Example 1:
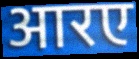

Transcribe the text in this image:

आरए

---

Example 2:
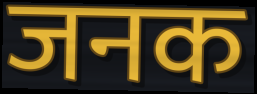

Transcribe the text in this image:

जनक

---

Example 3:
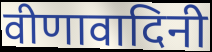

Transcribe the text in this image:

वीणावादिनी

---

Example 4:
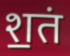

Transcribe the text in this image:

श॒तं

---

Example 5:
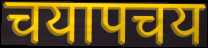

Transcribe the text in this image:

चयापचय